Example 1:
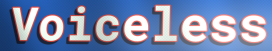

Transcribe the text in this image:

Voiceless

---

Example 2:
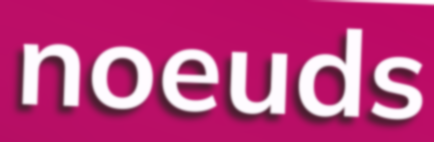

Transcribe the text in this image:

noeuds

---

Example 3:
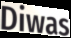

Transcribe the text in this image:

Diwas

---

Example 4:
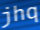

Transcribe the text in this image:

jhq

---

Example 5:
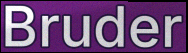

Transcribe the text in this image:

Bruder